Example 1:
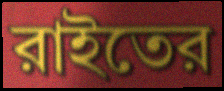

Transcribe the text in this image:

রাইতের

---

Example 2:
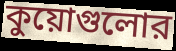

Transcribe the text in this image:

কুয়োগুলোর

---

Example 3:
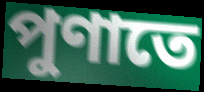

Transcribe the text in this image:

পুণাতে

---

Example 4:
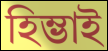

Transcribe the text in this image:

হিম্ভাই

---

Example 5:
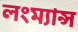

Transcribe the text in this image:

লংম্যান্স